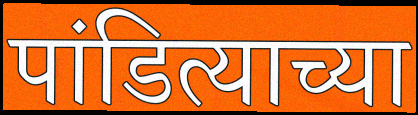
पांडित्याच्या